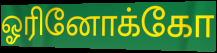
ஓரினோக்கோ